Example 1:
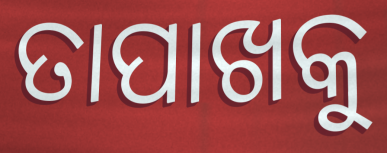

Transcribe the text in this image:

ତାପାଖକୁ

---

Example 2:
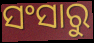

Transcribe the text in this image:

ସଂସାରୁ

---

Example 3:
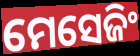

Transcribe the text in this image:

ମେସେଜିଂ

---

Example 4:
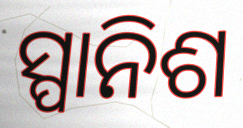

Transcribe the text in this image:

ସ୍ପାନିଶ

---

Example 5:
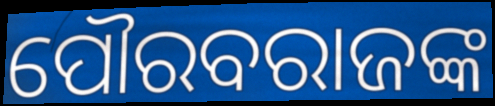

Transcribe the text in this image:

ପୌରବରାଜଙ୍କ